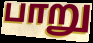
பாறு